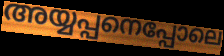
അയ്യപ്പനെപ്പോലെ